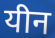
यीन